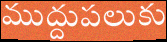
ముద్దుపలుకు